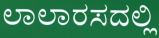
ಲಾಲಾರಸದಲ್ಲಿ